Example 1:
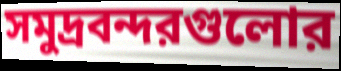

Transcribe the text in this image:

সমুদ্রবন্দরগুলোর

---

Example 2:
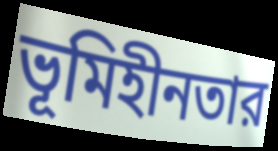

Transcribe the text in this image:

ভূমিহীনতার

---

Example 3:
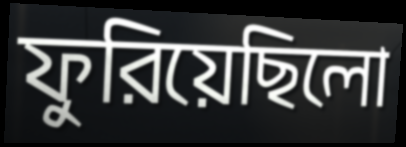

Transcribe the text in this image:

ফুরিয়েছিলো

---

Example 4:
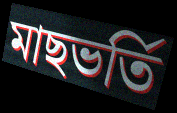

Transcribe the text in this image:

মাছভর্তি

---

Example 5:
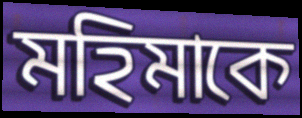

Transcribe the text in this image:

মহিমাকে